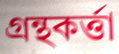
গ্রন্থকর্ত্তা